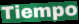
Tiempo